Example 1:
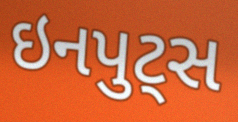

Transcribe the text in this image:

ઇનપુટ્સ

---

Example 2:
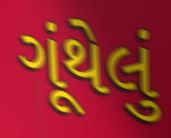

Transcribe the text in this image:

ગૂંથેલું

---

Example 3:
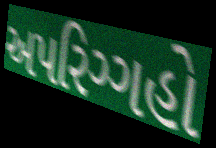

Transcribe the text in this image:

અપરિગ્ગહો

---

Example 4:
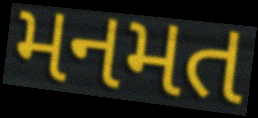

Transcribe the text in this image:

મનમત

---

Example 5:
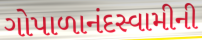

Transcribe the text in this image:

ગોપાળાનંદસ્વામીની